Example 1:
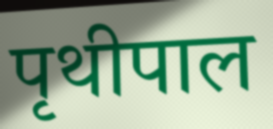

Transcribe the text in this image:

पृथीपाल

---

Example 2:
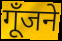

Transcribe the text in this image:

गूँजने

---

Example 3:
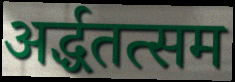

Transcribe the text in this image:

अर्द्धतत्सम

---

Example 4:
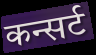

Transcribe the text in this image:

कन्सर्ट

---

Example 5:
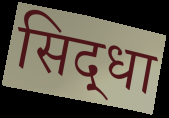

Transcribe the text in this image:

सिद्धा